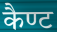
कैण्ट